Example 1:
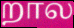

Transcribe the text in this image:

றால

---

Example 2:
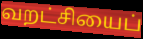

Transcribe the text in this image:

வறட்சியைப்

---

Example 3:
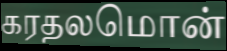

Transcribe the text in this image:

கரதலமொன்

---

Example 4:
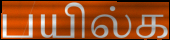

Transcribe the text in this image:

பயில்க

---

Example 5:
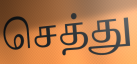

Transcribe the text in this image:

செத்து